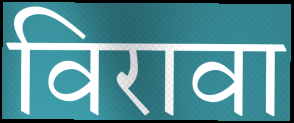
विरावा